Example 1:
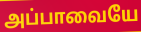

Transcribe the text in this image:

அப்பாவையே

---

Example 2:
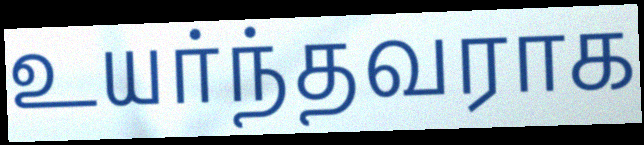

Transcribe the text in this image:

உயர்ந்தவராக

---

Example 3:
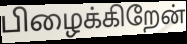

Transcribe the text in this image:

பிழைக்கிறேன்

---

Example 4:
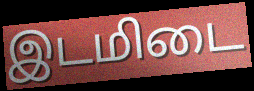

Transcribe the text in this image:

இடமிடை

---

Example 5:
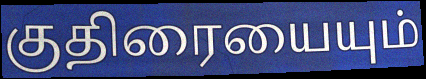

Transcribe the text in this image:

குதிரையையும்